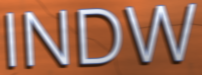
INDW